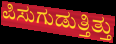
ಪಿಸುಗುಡುತ್ತಿತ್ತು